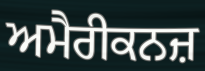
ਅਮੈਰੀਕਨਜ਼